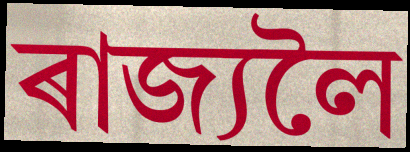
ৰাজ্যলৈ